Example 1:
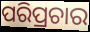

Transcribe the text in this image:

ପରିପ୍ରଚାର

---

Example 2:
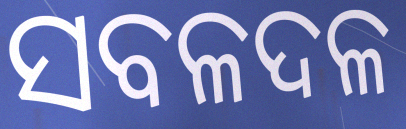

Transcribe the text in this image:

ସବଳଦଳ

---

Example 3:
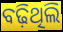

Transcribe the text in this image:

ବଢ଼ିଥିଲି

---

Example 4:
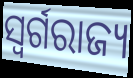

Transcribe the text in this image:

ସ୍ୱର୍ଗରାଜ୍ୟ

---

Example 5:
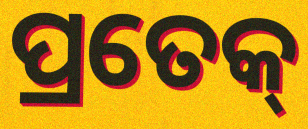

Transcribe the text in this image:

ପ୍ରତେକ୍